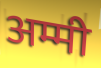
अम्मी